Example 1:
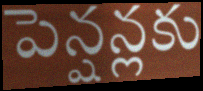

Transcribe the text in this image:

పెన్షన్లకు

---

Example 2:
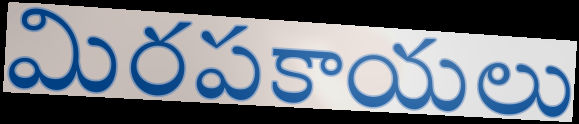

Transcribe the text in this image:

మిరపకాయలు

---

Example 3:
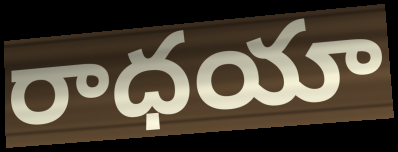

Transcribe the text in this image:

రాధయా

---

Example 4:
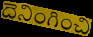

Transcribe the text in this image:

దెనింగించి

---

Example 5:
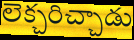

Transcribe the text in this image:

లెక్చరిచ్చాడు